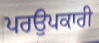
ਪਰਉਪਕਾਰੀ